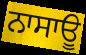
ਨਾਸਾਊ